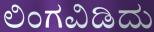
ಲಿಂಗವಿಡಿದು